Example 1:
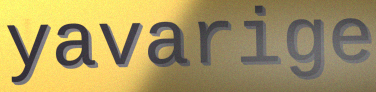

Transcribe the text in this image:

yavarige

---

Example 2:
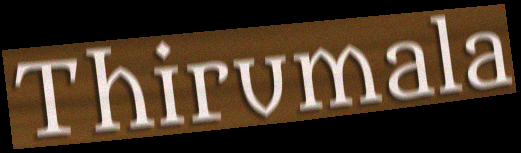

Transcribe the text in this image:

Thirumala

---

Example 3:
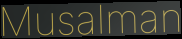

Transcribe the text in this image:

Musalman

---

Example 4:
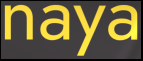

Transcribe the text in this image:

naya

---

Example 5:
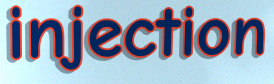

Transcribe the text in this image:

injection